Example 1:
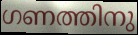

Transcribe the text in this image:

ഗണത്തിനു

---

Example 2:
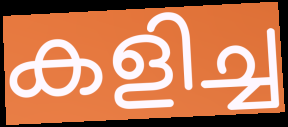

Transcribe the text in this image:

കളിച്ച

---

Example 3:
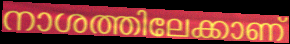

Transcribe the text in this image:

നാശത്തിലേക്കാണ്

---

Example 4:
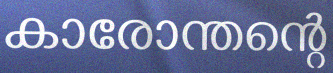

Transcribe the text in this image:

കാരോന്തന്റെ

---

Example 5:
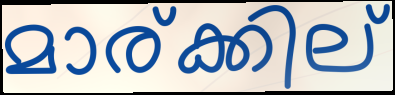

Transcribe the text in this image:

മാര്ക്കില്